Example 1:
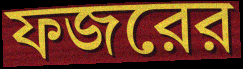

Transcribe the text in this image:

ফজরের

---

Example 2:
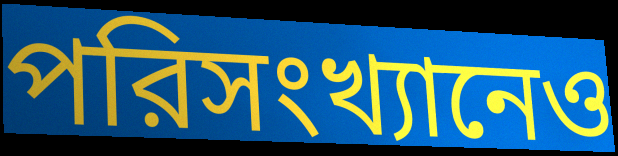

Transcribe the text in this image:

পরিসংখ্যানেও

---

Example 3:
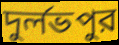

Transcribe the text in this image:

দুর্লভপুর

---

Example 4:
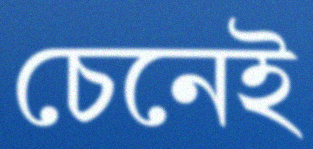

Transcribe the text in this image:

চেনেই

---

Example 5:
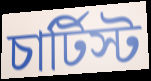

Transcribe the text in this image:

চার্টিস্ট